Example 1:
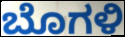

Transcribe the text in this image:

ಬೊಗಳಿ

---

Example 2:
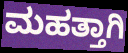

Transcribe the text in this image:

ಮಹತ್ತಾಗಿ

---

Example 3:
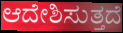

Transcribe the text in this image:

ಆದೇಶಿಸುತ್ತದೆ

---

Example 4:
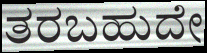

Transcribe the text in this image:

ತರಬಹುದೇ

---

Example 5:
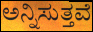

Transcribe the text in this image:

ಅನ್ನಿಸುತ್ತವೆ